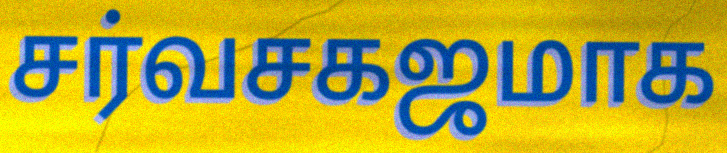
சர்வசகஜமாக